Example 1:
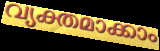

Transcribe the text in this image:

വ്യക്തമാക്കാം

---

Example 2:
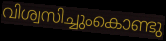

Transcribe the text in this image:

വിശ്വസിച്ചുംകൊണ്ടു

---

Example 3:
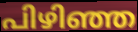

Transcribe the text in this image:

പിഴിഞ്ഞ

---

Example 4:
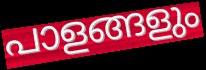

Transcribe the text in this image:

പാളങ്ങളും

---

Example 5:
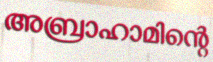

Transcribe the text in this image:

അബ്രാഹാമിന്റെ